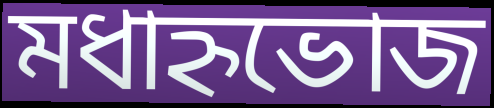
মধাহ্নভোজ